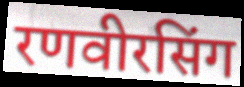
रणवीरसिंग